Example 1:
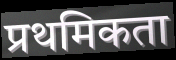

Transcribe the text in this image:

प्रथमिकता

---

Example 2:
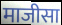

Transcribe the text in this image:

माजीसा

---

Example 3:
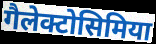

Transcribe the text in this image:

गैलेक्टोसिमिया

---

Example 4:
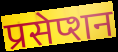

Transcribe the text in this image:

प्रसेप्शन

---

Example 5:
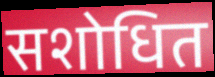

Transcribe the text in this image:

सशोधित